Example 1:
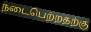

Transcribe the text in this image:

நடைபெற்றதற்கு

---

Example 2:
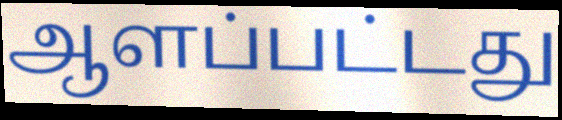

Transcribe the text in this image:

ஆளப்பட்டது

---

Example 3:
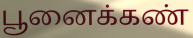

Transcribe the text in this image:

பூனைக்கண்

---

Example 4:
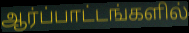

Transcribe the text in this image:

ஆர்ப்பாட்டங்களில்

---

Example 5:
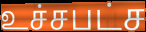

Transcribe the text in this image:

உச்சபட்ச